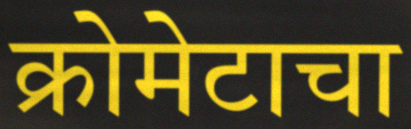
क्रोमेटाचा